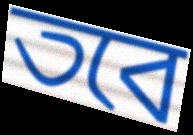
তবে